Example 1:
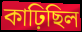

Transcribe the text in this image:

কাঢ়িছিল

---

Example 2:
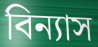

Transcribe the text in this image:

বিন্যাস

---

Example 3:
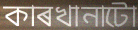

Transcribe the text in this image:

কাৰখানাটো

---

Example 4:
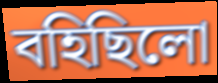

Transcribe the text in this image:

বহিছিলো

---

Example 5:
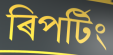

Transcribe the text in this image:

ৰিপৰ্টিং